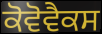
ਕੋਵੋਵੈਕਸ